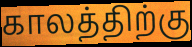
காலத்திற்கு